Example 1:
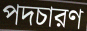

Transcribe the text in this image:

পদচারণ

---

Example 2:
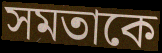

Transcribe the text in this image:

সমতাকে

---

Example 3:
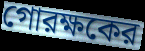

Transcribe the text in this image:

গোরক্ষকের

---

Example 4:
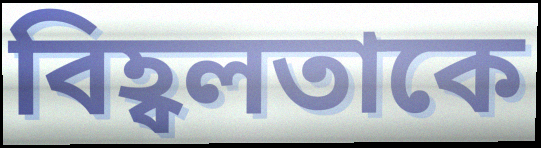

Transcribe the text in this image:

বিহ্বলতাকে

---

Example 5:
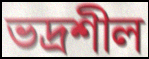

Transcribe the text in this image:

ভদ্রশীল